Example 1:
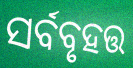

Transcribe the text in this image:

ସର୍ବବୃହତ୍ତ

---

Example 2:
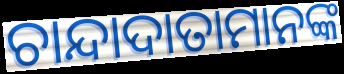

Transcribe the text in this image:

ଚାନ୍ଦାଦାତାମାନଙ୍କ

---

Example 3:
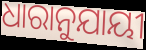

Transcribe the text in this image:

ଧାରାନୁଯାୟୀ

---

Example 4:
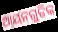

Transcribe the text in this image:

ଆୟନଗୁଡିକ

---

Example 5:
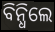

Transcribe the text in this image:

ବିନ୍ଧିଲେ